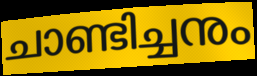
ചാണ്ടിച്ചനും